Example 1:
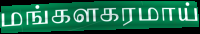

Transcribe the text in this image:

மங்களகரமாய்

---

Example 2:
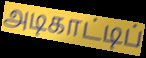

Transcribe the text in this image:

அடிகாட்டிப்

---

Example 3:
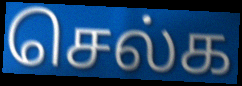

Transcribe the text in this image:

செல்க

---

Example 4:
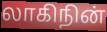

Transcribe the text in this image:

லாகிநின்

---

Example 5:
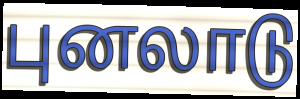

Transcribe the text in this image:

புனலாடு